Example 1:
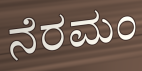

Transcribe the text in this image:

ನೆರಮಂ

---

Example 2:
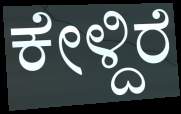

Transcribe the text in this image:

ಕೇಳ್ದಿರೆ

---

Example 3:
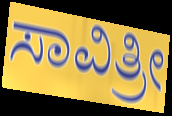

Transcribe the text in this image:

ಸಾವಿತ್ರೀ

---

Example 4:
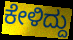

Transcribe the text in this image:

ಕೇಳಿದ್ದು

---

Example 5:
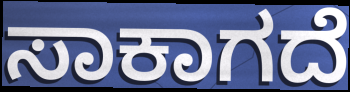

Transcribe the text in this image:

ಸಾಕಾಗದೆ